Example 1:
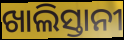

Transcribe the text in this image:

ଖାଲିସ୍ତାନୀ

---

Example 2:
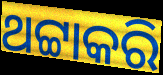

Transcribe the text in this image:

ଥଟ୍ଟାକରି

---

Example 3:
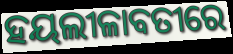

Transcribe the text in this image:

ହୟଲୀଳାବତୀରେ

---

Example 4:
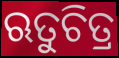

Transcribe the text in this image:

ଋତୁଚିତ୍ର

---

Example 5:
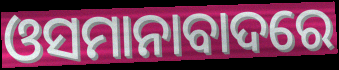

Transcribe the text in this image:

ଓସମାନାବାଦରେ